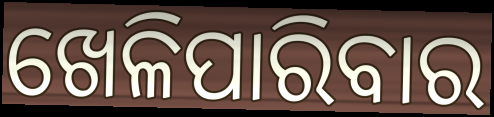
ଖେଳିପାରିବାର